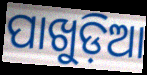
ପାଖୁଡ଼ିଆ